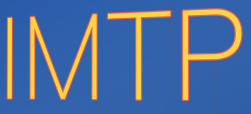
IMTP